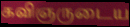
கவிஞருடைய